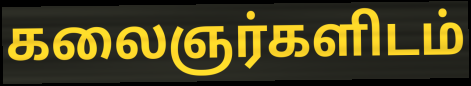
கலைஞர்களிடம்